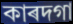
কাৰদগা